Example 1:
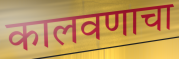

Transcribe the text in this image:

कालवणाचा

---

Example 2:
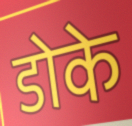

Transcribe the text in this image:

डोके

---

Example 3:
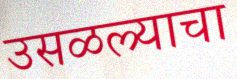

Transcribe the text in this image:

उसळल्याचा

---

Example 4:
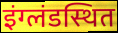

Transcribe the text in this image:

इंग्लंडस्थित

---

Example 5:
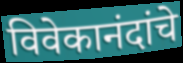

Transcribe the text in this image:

विवेकानंदांचे